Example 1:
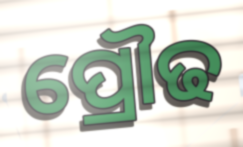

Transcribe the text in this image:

ପ୍ରୌଢ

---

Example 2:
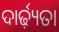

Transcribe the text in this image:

ଦାର୍ଢ଼୍ୟତା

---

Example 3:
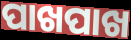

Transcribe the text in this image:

ପାଖପାଖ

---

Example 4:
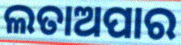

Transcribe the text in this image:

ଲତାଅପାର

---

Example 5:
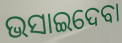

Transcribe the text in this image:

ଭସାଇଦେବା